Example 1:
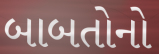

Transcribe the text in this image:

બાબતોનો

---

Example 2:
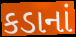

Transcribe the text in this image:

કડાનાં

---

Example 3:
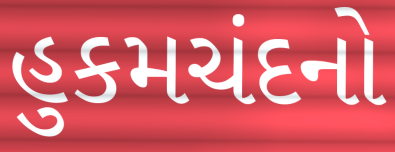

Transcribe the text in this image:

હુકમચંદનો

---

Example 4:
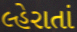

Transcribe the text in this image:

લ્હેરાતાં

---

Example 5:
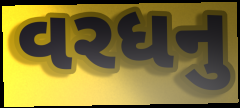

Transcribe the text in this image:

વરધનુ